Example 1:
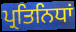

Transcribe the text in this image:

ਪ੍ਰਤਿਨਿਧਾਂ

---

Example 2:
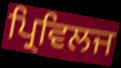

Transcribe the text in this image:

ਪ੍ਰਿਵਿਲਜ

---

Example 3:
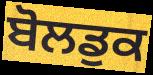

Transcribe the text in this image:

ਬੋਲਡੁਕ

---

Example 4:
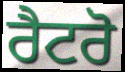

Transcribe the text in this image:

ਰੈਟਰੋ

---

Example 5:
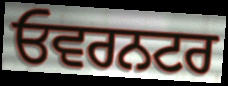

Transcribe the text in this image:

ਓਵਰਨਟਰ